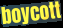
boycott